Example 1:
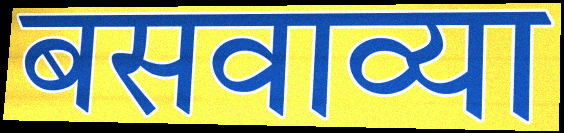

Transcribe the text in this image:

बसवाव्या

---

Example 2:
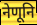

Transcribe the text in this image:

नेणूनि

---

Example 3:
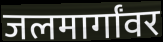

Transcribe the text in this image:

जलमार्गांवर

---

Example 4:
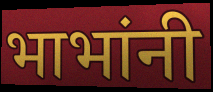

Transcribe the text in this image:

भाभांनी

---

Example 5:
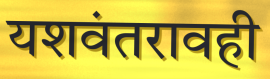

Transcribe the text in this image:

यशवंतरावही